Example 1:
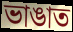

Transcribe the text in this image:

ভাঙাত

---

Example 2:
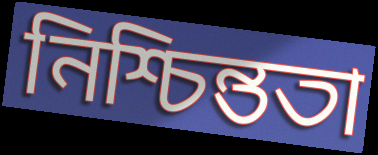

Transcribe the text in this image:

নিশ্চিন্ততা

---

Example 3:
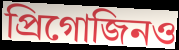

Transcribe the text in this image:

প্রিগোজিনও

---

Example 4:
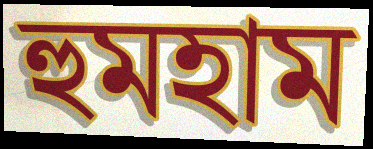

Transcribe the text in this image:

হুমহাম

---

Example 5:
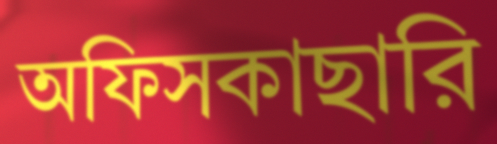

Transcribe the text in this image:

অফিসকাছারি